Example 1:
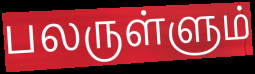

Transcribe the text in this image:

பலருள்ளும்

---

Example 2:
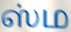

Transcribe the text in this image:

ஸ்ம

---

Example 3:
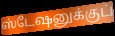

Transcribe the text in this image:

ஸ்டேஷனுக்குப்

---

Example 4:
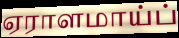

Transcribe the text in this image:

ஏராளமாய்ப்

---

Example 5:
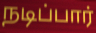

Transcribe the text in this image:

நடிப்பார்